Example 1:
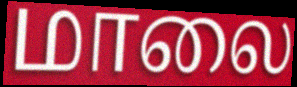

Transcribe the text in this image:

மாலை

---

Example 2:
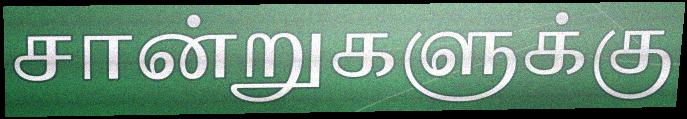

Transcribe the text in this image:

சான்றுகளுக்கு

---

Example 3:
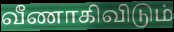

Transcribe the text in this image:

வீணாகிவிடும்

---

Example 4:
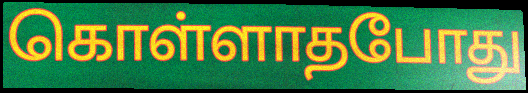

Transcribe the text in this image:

கொள்ளாதபோது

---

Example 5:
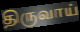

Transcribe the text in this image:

திருவாய்